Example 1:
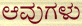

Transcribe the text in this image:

ಆವುಗಳು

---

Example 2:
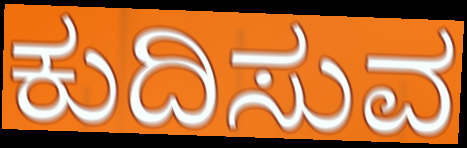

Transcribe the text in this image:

ಕುದಿಸುವ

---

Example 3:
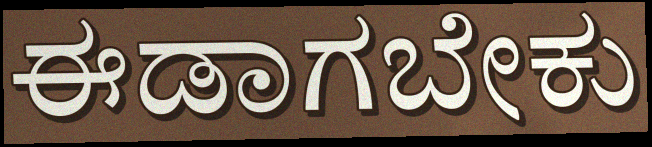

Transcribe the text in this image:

ಈಡಾಗಬೇಕು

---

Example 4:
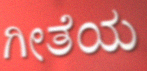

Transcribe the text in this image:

ಗೀತೆಯ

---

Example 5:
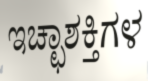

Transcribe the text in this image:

ಇಚ್ಛಾಶಕ್ತಿಗಳ